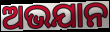
ଅଭଯାନ